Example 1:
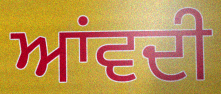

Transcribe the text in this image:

ਆਂਵਦੀ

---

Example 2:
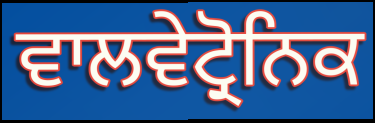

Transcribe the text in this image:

ਵਾਲਵੇਟ੍ਰੋਨਿਕ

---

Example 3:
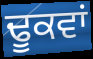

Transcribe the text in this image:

ਢੂਕਵਾਂ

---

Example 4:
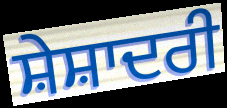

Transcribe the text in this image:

ਸ਼ੇਸ਼ਾਦਰੀ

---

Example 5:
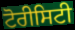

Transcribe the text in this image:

ਟੋਰੀਸਿਟੀ